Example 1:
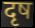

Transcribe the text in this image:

दृष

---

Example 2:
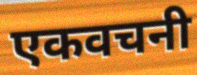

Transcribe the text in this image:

एकवचनी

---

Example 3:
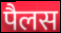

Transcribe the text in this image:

पैलस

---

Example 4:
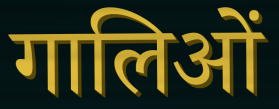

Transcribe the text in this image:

गालिओं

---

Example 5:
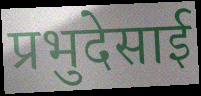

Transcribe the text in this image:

प्रभुदेसाई